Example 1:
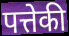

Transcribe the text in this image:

पत्तेकी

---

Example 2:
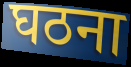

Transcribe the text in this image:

घठना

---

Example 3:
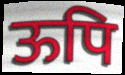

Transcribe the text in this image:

ऊपि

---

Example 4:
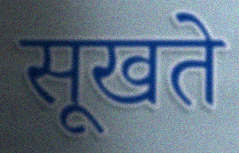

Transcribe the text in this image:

सूखते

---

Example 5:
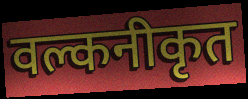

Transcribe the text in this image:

वल्कनीकृत